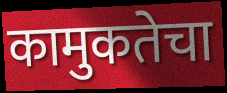
कामुकतेचा